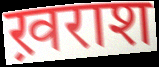
ख़राश